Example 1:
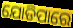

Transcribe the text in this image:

ଯୋଡିପାରେ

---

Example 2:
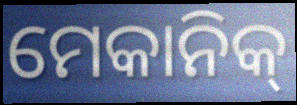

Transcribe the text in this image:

ମେକାନିକ୍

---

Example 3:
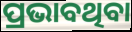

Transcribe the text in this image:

ପ୍ରଭାବଥିବା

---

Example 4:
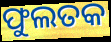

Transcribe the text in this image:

ଫୁଲତକ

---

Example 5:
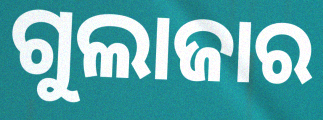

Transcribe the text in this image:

ଗୁଲାଜାର